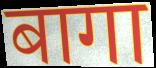
बागा